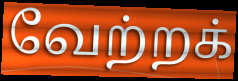
வேற்றக்